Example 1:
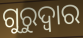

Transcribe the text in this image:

ଗୁରୁଦ୍ଵାର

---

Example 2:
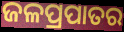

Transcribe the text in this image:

ଜଳପ୍ରପାତର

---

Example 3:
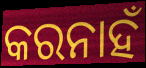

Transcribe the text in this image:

କରନାହଁ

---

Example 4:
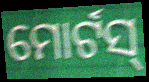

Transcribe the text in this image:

ମୋର୍ଟସ୍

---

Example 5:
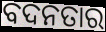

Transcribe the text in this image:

ବଦନତାର